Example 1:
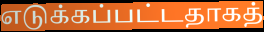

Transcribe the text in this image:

எடுக்கப்பட்டதாகத்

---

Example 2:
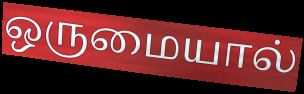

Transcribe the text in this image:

ஒருமையால்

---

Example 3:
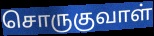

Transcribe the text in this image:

சொருகுவாள்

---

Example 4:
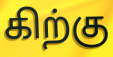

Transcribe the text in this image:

கிற்கு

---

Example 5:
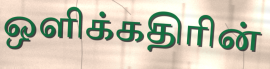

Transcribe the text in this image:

ஒளிக்கதிரின்